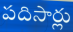
పదిసార్లు